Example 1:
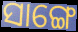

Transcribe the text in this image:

ସାଙ୍ଗେ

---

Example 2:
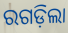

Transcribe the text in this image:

ରଗଡ଼ିଲା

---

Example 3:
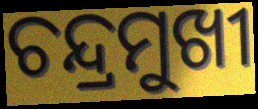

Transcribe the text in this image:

ଚନ୍ଦ୍ରମୁଖୀ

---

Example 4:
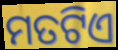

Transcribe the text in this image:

ମତଟିଏ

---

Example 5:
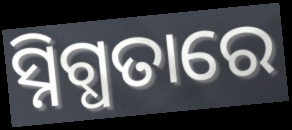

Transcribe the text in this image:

ସ୍ନିଗ୍ଧତାରେ